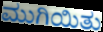
ಮುಗಿಯಿತು